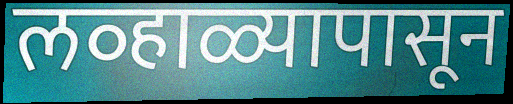
लव्हाळ्यापासून